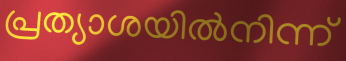
പ്രത്യാശയിൽനിന്ന്